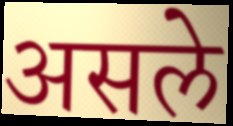
असले